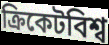
ক্রিকেটবিশ্ব